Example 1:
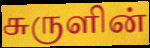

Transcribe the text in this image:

சுருளின்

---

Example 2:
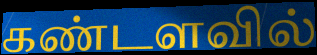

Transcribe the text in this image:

கண்டளவில்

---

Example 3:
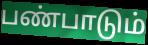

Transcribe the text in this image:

பண்பாடும்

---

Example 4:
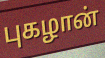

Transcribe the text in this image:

புகழான்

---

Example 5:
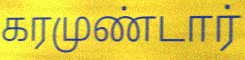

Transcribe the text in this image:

கரமுண்டார்